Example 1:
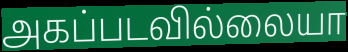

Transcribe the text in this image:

அகப்படவில்லையா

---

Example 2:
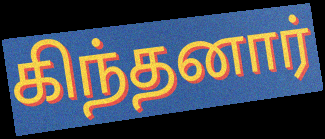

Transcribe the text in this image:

கிந்தனார்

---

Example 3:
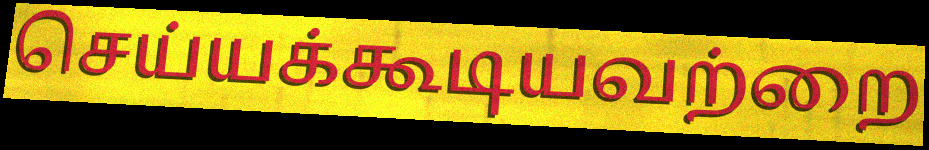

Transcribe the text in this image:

செய்யக்கூடியவற்றை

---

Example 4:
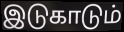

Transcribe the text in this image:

இடுகாடும்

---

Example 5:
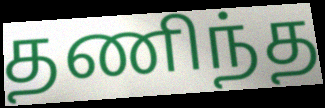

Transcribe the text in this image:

தணிந்த